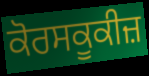
ਕੋਰਸਕੂਕੀਜ਼